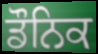
ਡੌਨਿਕ